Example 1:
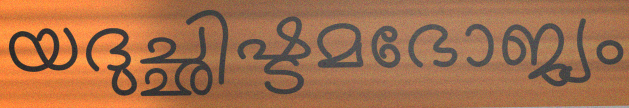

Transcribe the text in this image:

യദുച്ഛിഷ്ടമഭോജ്യം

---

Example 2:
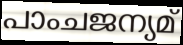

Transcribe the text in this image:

പാംചജന്യമ്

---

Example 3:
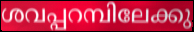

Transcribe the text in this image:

ശവപ്പറമ്പിലേക്കു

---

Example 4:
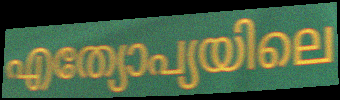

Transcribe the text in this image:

എത്യോപ്യയിലെ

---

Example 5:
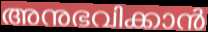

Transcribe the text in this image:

അനുഭവിക്കാൻ